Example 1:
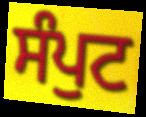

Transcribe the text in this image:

ਸੰਪੁਟ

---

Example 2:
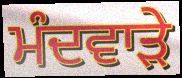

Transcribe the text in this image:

ਮੰਦਵਾੜੇ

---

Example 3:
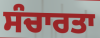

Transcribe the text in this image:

ਸੰਚਾਰਤਾ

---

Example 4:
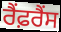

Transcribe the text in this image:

ਰੈਂਫ਼ਰੈਂਸ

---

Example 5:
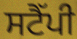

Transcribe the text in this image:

ਸਟੈੱਪੀ